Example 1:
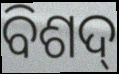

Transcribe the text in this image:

ବିଶଦ୍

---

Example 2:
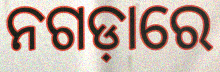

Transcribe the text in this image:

ନଗଡ଼ାରେ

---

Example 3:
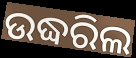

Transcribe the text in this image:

ଉଦ୍ଧରିଲ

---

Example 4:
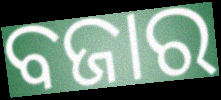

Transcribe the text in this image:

ବଜାର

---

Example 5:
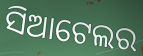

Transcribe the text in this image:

ସିଆଟେଲର